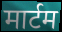
मार्टम